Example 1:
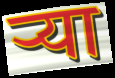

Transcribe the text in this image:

ऱ्या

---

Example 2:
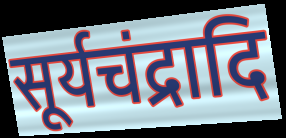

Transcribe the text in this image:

सूर्यचंद्रादि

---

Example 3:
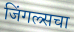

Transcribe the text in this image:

जिंगल्सचा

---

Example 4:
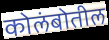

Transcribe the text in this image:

कोलंबोतील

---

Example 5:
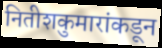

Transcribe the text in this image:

नितीशकुमारांकडून